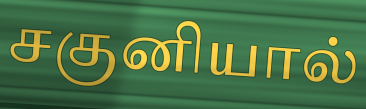
சகுனியால்